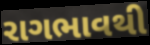
રાગભાવથી